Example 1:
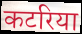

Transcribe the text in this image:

कटरिया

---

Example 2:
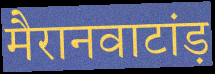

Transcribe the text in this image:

मैरानवाटांड़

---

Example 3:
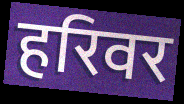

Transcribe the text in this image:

हरिवर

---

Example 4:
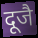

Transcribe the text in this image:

दूजै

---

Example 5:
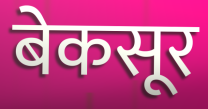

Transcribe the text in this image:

बेकसूर